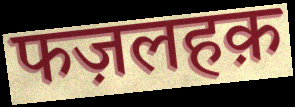
फज़लहक़